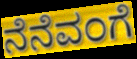
ನೆನೆವಂಗೆ